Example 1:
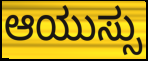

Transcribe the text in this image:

ಆಯುಸ್ಸು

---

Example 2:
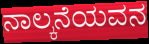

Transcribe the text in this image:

ನಾಲ್ಕನೆಯವನ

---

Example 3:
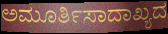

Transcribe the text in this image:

ಅಮೂರ್ತಿಸಾದಾಖ್ಯದ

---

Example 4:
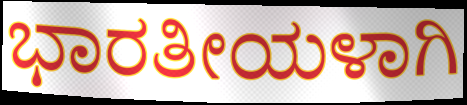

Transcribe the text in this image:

ಭಾರತೀಯಳಾಗಿ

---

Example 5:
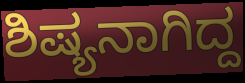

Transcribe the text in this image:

ಶಿಷ್ಯನಾಗಿದ್ದ